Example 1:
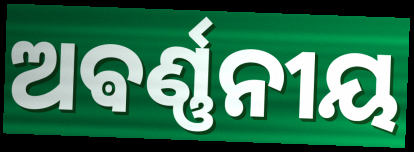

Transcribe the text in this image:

ଅଵର୍ଣ୍ଣନୀୟ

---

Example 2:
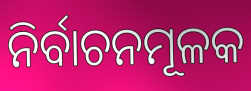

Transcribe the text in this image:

ନିର୍ବାଚନମୂଳକ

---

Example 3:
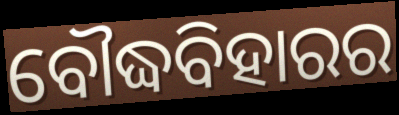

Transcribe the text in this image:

ବୌଦ୍ଧବିହାରର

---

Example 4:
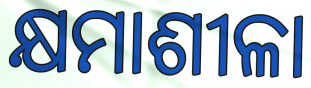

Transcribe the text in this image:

କ୍ଷମାଶୀଳା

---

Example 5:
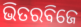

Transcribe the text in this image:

ଭିତରବିଜେ